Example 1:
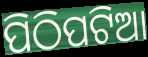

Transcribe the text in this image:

ପିଠିପଟିଆ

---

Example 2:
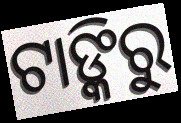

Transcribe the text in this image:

ଟାଙ୍କିରୁ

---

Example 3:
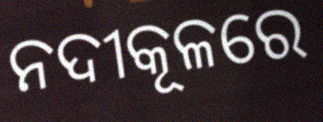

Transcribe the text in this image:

ନଦୀକୂଳରେ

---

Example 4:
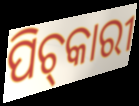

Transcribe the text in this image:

ପିଚ୍‌କାରୀ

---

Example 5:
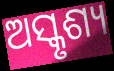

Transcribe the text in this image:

ଅସ୍କୃଶ୍ୟ